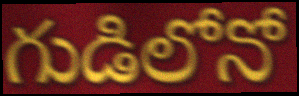
గుడిలోనో